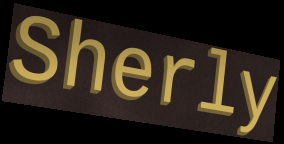
Sherly